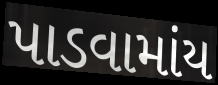
પાડવામાંય